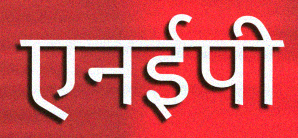
एनईपी